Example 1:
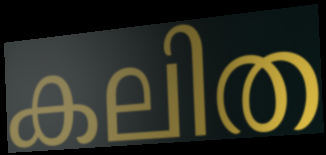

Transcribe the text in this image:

കലിത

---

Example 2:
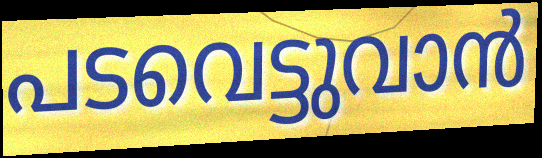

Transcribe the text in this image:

പടവെട്ടുവാൻ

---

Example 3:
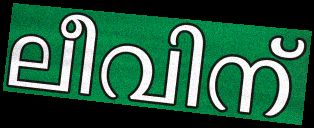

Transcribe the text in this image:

ലീവിന്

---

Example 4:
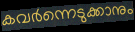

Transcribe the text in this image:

കവർന്നെടുക്കാനും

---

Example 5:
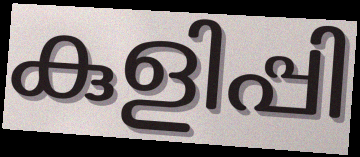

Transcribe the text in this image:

കുളിപ്പി